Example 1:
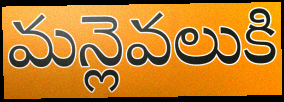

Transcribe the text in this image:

మన్లెవలుకి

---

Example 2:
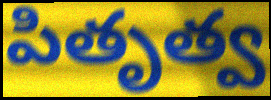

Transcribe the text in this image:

పితృత్వ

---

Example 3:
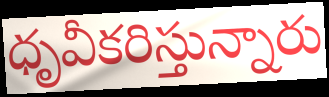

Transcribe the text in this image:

ధృవీకరిస్తున్నారు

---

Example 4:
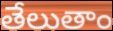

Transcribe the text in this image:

తేలుతాం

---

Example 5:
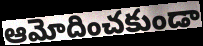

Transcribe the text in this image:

ఆమోదించకుండా